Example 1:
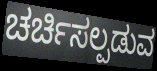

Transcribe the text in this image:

ಚರ್ಚಿಸಲ್ಪಡುವ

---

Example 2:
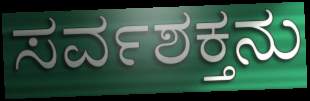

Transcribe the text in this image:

ಸರ್ವಶಕ್ತನು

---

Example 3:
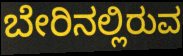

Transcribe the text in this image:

ಬೇರಿನಲ್ಲಿರುವ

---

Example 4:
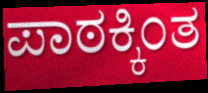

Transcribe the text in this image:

ಪಾಠಕ್ಕಿಂತ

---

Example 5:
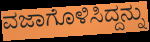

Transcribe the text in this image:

ವಜಾಗೊಳಿಸಿದ್ದನ್ನು